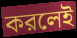
করলেই